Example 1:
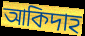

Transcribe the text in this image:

আকিদাহ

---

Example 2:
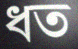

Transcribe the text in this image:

ধত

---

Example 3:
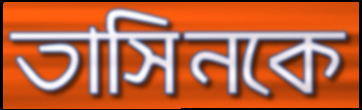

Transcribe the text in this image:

তাসিনকে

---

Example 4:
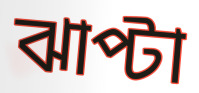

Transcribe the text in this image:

ঝাপ্টা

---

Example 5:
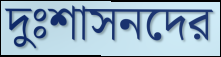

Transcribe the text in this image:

দুঃশাসনদের